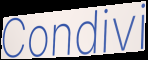
Condivi